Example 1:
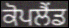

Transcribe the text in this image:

ਕੋਪਲੈਂਡ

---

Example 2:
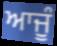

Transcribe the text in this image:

ਆਜੂੰ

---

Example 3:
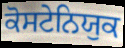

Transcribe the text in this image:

ਕੋਸਟੇਨਿਯੁਕ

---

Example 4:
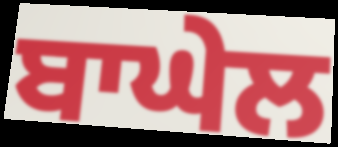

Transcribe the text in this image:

ਬਾਘੇਲ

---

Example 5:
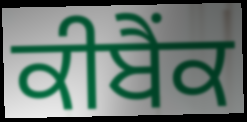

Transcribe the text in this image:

ਕੀਬੈਂਕ